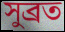
সুব্রত